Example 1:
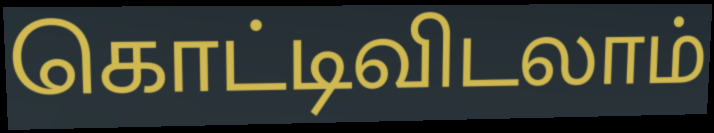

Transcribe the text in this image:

கொட்டிவிடலாம்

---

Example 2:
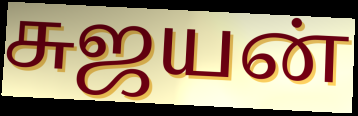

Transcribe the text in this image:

சுஜயன்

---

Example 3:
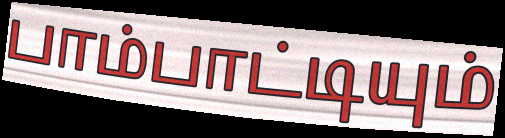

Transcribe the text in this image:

பாம்பாட்டியும்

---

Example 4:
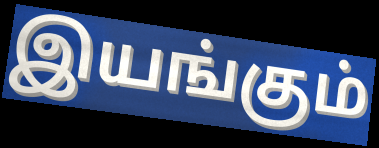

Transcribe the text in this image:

இயங்கும்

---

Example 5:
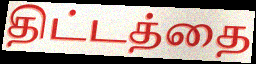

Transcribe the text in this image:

திட்டத்தை